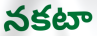
నకటా